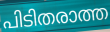
പിടിതരാത്ത